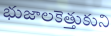
భుజాలకెత్తుకుని